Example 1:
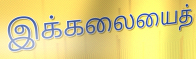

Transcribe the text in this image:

இக்கலையைத்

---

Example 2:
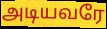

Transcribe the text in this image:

அடியவரே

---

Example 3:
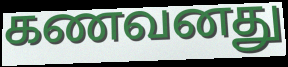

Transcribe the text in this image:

கணவனது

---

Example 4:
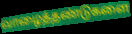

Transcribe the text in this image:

வாழைத்தண்டுகளை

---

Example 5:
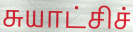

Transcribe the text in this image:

சுயாட்சிச்